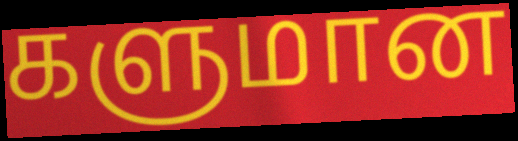
களுமான